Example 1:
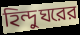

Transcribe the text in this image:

হিন্দুঘরের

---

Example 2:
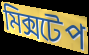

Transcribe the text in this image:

মিক্সটেপ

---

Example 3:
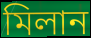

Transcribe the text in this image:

মিলান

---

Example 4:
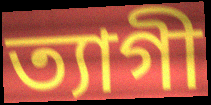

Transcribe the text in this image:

ত্যাগী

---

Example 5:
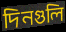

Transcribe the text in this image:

দিনগুলি